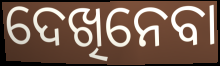
ଦେଖିନେବା